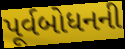
પૂર્વબોધનની